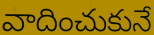
వాదించుకునే